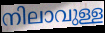
നിലാവുള്ള